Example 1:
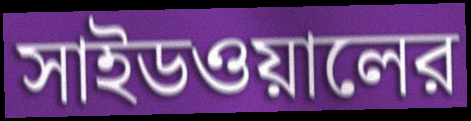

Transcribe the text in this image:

সাইডওয়ালের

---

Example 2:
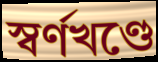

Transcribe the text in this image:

স্বর্ণখণ্ডে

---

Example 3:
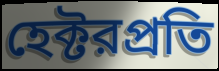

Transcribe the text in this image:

হেক্টরপ্রতি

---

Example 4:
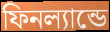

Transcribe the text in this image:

ফিনল্যান্ডে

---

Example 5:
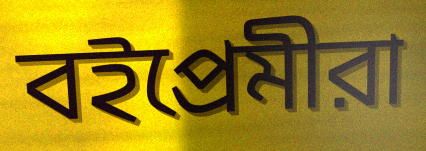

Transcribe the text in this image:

বইপ্রেমীরা